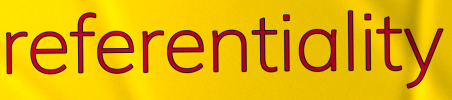
referentiality